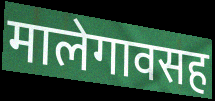
मालेगावसह